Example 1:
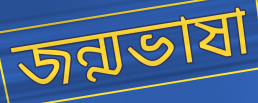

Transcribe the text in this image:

জন্মভাষা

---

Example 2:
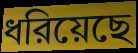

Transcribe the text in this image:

ধরিয়েছে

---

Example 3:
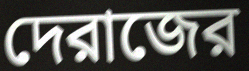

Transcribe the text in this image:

দেরাজের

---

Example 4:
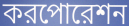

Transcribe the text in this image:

করপোরেশন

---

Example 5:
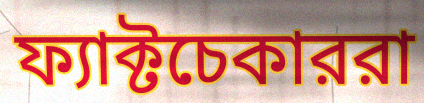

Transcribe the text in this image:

ফ্যাক্টচেকাররা